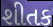
શીતક